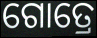
ଗୋତ୍ରେ